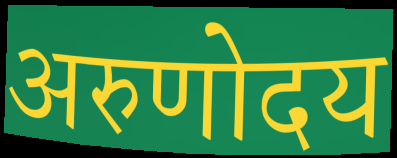
अरुणोदय